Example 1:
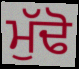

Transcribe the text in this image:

ਮੁੱਢੋ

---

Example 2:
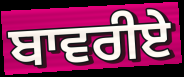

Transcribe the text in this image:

ਬਾਵਰੀਏ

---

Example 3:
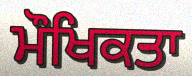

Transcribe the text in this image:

ਮੌਖਿਕਤਾ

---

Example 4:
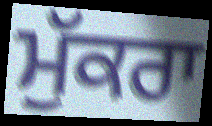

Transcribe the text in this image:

ਮੁੱਕਰਾ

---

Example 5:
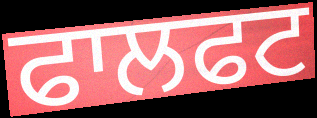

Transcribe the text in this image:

ਫਾਲਫਟ